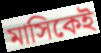
মাসিকেই